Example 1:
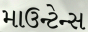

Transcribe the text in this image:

માઉન્ટેન્સ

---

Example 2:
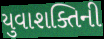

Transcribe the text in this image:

યુવાશક્તિની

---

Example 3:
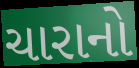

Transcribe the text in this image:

ચારાનો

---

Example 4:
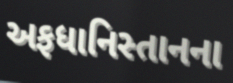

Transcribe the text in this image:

અફધાનિસ્તાનના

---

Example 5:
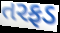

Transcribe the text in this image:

તરફડ